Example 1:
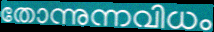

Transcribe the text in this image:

തോന്നുന്നവിധം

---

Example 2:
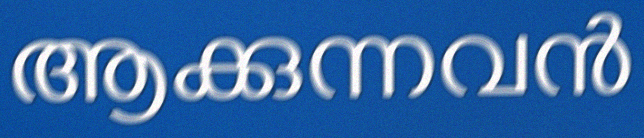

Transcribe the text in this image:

ആക്കുന്നവൻ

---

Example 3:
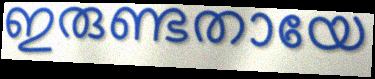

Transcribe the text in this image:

ഇരുണ്ടതായേ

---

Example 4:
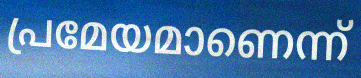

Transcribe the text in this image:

പ്രമേയമാണെന്ന്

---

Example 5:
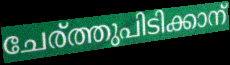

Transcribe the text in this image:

ചേര്ത്തുപിടിക്കാന്